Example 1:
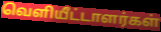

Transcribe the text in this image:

வெளியீட்டாளர்கள்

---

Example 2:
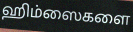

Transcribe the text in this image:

ஹிம்ஸைகளை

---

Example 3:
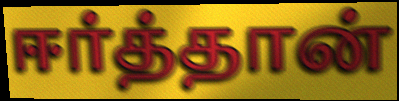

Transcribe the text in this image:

ஈர்த்தான்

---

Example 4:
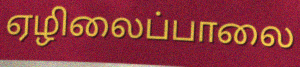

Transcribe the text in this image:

ஏழிலைப்பாலை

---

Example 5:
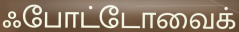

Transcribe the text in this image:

ஃபோட்டோவைக்